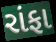
રાંફા